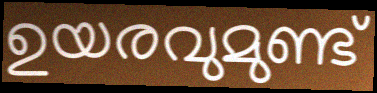
ഉയരവുമുണ്ട്